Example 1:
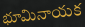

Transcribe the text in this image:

భూమినాయక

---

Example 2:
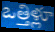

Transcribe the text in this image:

ఒత్తిళ్లూ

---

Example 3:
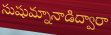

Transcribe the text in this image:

సుషుమ్నానాడిద్వారా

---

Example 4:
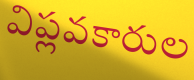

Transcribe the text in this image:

విప్లవకారుల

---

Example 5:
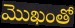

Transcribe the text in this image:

మొఖంతో